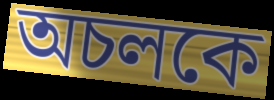
অচলকে